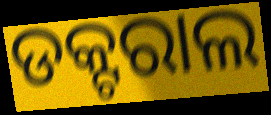
ଡକ୍ଟରାଲ